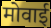
मोवाई